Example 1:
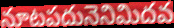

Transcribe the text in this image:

నూటపదునెనిమిదవ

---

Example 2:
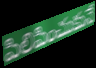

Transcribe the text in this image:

పిలిపించుకునే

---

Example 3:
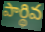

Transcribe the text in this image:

పార్థివ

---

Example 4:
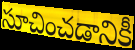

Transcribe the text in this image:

సూచించడానికీ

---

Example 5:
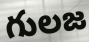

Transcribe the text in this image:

గులజ